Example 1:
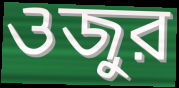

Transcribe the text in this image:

ওজুর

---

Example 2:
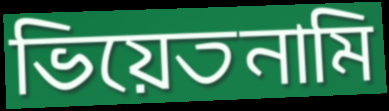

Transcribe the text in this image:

ভিয়েতনামি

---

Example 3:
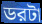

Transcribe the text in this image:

ডরটা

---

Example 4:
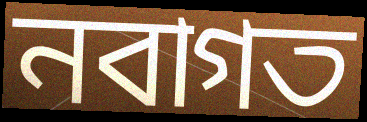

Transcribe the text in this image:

নবাগত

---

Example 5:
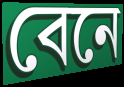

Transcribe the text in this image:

বেনে